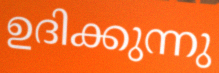
ഉദിക്കുന്നു